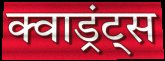
क्वाड्रंट्स